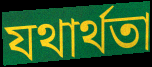
যথার্থতা